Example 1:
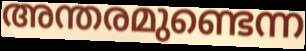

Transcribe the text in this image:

അന്തരമുണ്ടെന്ന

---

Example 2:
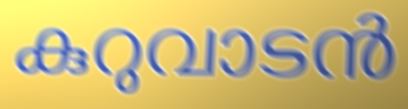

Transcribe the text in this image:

കുറുവാടൻ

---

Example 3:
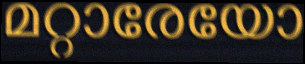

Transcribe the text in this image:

മറ്റാരേയോ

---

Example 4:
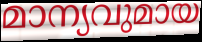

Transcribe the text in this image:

മാന്യവുമായ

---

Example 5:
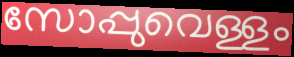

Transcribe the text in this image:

സോപ്പുവെള്ളം